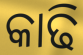
କାଢି